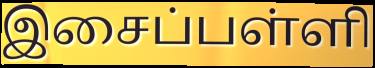
இசைப்பள்ளி